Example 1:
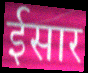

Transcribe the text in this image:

ईसार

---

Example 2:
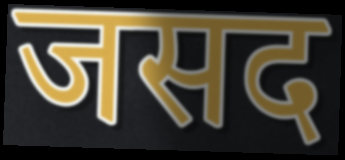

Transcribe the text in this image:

जसद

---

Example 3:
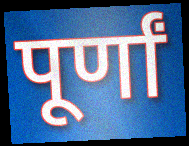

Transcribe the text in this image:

पूर्णां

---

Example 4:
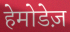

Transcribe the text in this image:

हेमोडेज़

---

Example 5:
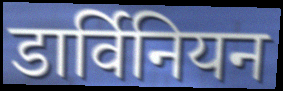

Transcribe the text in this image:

डार्विनियन